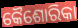
କୈଶୋରିକା